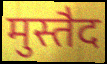
मुस्तैद